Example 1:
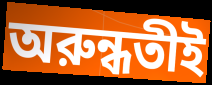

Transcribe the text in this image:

অরুন্ধতীই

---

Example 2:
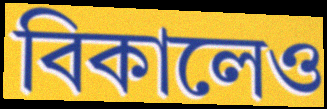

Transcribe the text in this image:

বিকালেও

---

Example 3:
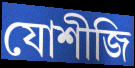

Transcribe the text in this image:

যোশীজি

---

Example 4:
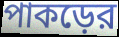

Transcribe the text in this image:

পাকড়ের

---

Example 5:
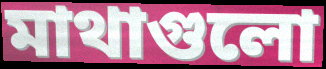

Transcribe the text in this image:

মাথাগুলো